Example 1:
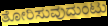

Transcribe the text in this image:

ತೋರಿಸುವುದುಂಟು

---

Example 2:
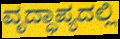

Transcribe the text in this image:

ವೃದ್ಧಾಪ್ಯದಲ್ಲಿ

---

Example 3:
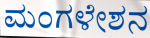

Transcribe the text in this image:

ಮಂಗಳೇಶನ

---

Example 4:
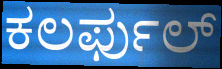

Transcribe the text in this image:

ಕಲರ್ಫುಲ್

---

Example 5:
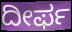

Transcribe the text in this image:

ದೀರ್ಫ